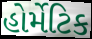
હોર્મેટિક